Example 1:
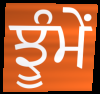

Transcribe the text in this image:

ਝੂੰਮੇਂ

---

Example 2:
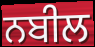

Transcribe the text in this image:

ਨਬੀਲ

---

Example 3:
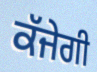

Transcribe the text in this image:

ਕੱਜੇਗੀ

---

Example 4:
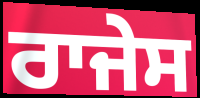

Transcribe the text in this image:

ਰਾਜੇਸ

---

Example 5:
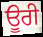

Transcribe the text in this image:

ਊਰੀ